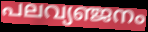
പലവ്യഞ്ജനം